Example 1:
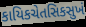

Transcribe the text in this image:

કાયિકચેતસિકસુખં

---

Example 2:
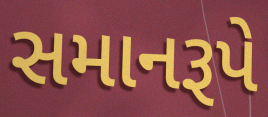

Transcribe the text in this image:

સમાનરૂપે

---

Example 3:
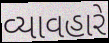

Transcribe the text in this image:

વ્યાવહારે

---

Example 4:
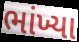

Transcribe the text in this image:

ભાંખ્યા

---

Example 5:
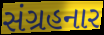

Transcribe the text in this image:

સંગ્રહનાર